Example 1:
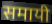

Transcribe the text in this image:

समायी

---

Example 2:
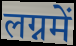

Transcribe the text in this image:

लग्नमें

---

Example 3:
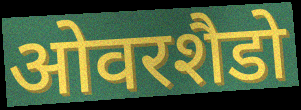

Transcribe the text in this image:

ओवरशैडो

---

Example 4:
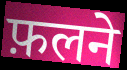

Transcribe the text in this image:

फ़लने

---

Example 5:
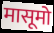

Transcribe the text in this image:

मासूमो